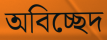
অবিচ্ছেদ